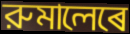
ৰুমালেৰে